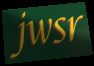
jwsr